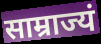
साम्राज्यं